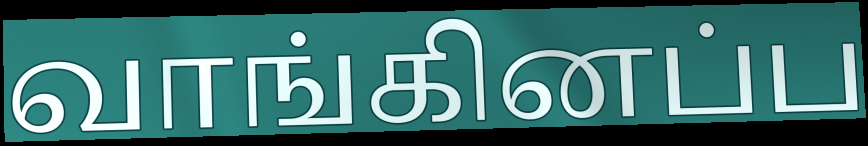
வாங்கினப்ப